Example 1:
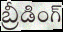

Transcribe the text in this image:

బ్రీడింగ్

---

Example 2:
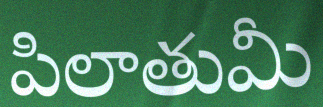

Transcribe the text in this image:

పిలాతుమీ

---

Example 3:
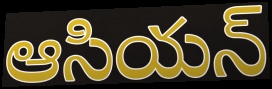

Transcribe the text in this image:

ఆసియన్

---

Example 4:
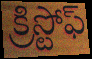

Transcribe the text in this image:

క్రిస్టోఫ్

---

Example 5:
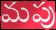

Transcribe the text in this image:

మపు